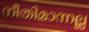
നീതിമാന്നല്ല